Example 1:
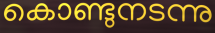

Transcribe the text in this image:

കൊണ്ടുനടന്നു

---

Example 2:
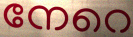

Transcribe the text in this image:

നേറെ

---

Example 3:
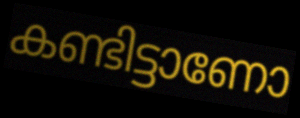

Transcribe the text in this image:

കണ്ടിട്ടാണോ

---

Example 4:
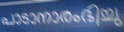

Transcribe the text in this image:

പാടാനാരംഭിച്ചു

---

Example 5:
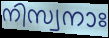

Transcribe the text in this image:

നിസ്വനാഃ